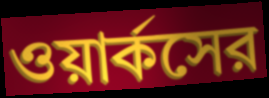
ওয়ার্কসের